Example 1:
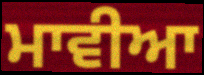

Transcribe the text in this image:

ਮਾਵੀਆ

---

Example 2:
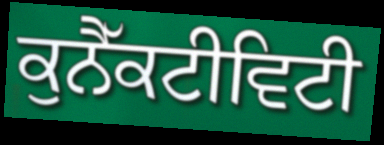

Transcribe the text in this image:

ਕੁਨੈੱਕਟੀਵਿਟੀ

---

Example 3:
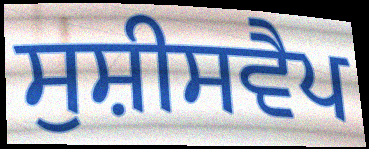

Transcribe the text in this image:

ਸੁਸ਼ੀਸਵੈਪ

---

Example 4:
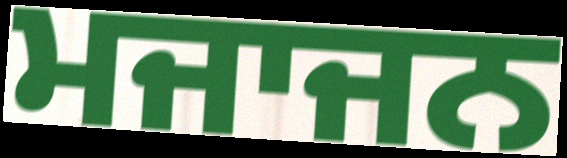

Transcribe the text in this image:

ਮਜਾਜਨ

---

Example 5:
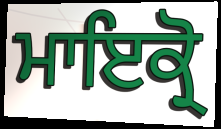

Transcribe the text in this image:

ਮਾਇਕ੍ਰੋ